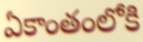
ఏకాంతంలోకి